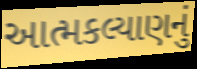
આત્મકલ્યાણનું